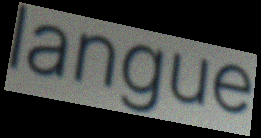
langue